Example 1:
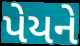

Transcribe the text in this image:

પેયને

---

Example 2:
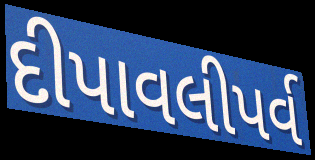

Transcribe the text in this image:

દીપાવલીપર્વ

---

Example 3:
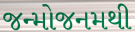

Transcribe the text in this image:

જન્મોજનમથી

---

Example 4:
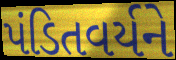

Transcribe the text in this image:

પંડિતવર્યને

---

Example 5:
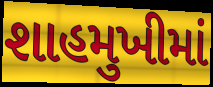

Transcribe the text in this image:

શાહમુખીમાં